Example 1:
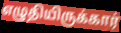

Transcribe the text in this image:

எழுதியிருக்கார்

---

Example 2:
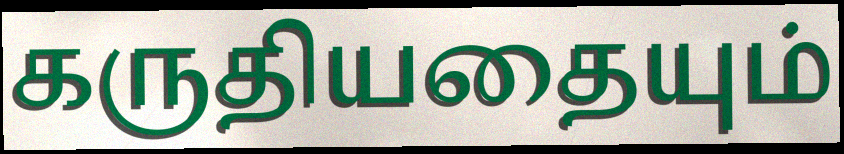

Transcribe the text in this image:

கருதியதையும்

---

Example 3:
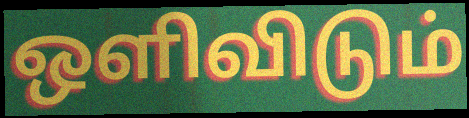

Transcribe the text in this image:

ஒளிவிடும்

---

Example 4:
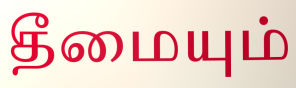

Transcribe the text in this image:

தீமையும்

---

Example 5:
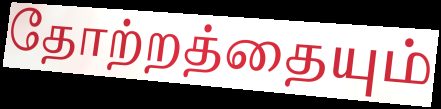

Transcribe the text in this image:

தோற்றத்தையும்